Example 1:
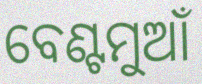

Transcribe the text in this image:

ବେଣ୍ଟମୁଆଁ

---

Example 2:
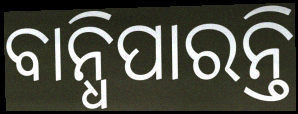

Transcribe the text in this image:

ବାନ୍ଧିପାରନ୍ତି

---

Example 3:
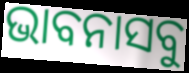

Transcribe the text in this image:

ଭାବନାସବୁ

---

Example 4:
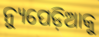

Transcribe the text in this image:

ନ୍ୟୁପେଡ଼ିଆକୁ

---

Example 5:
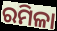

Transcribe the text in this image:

ରମିଳା